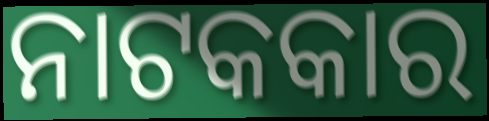
ନାଟକକାର